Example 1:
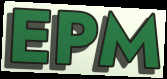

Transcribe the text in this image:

EPM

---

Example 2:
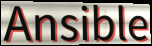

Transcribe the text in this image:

Ansible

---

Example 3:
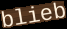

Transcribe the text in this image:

blieb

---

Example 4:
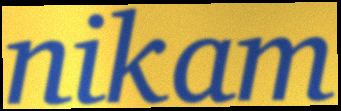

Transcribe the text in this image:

nikam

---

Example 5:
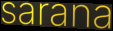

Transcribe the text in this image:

sarana